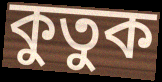
কুতুক